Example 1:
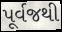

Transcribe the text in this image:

પૂર્વજથી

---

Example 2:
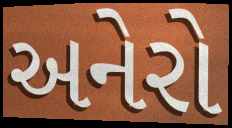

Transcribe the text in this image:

અનેરો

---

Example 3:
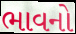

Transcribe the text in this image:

ભાવનો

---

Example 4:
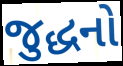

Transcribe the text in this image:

જુદ્ધનો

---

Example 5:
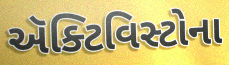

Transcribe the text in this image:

ઍક્ટિવિસ્ટોના